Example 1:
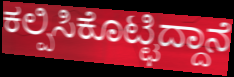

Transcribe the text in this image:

ಕಲ್ಪಿಸಿಕೊಟ್ಟಿದ್ದಾನೆ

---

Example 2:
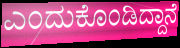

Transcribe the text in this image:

ಎಂದುಕೊಂಡಿದ್ದಾನೆ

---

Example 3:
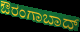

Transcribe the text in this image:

ಔರಂಗಾಬಾದ್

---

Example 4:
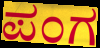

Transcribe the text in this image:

ಪಂಗ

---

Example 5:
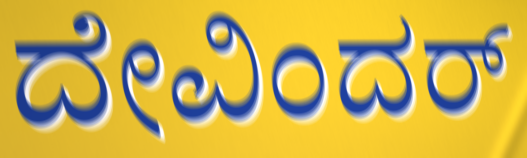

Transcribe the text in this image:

ದೇವಿಂದರ್